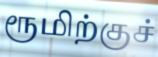
ரூமிற்குச்